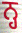
ਨ੍ਹ